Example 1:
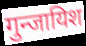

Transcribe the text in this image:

गुन्जायिश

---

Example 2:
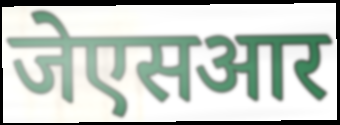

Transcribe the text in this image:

जेएसआर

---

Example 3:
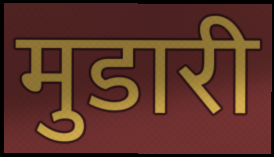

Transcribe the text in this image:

मुडारी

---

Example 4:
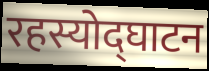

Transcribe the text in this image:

रहस्योद्घाटन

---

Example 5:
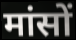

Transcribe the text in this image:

मांसों